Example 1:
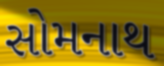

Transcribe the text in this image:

સોમનાથ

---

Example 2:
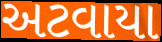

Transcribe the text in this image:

અટવાયા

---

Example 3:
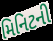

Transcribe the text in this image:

મિનિટની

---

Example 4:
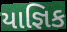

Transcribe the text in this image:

યાજ્ઞિક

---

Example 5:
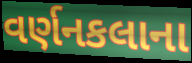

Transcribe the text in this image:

વર્ણનકલાના